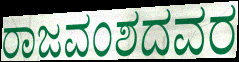
ರಾಜವಂಶದವರ